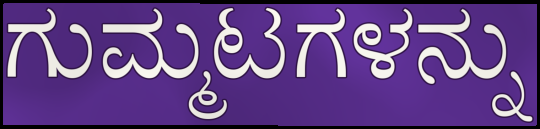
ಗುಮ್ಮಟಗಳನ್ನು